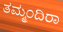
ತಮ್ಮಂದಿರಾ